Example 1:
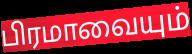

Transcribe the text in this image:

பிரமாவையும்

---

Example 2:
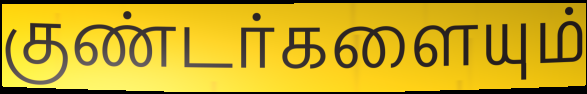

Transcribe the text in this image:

குண்டர்களையும்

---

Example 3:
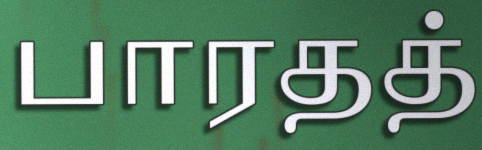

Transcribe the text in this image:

பாரதத்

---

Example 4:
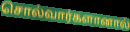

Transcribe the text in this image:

சொல்வார்களானால்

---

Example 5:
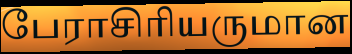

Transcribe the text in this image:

பேராசிரியருமான